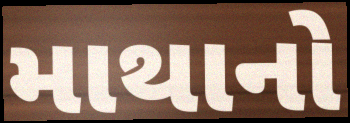
માથાનો